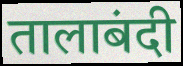
तालाबंदी